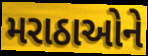
મરાઠાઓને